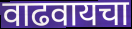
वाढवायचा